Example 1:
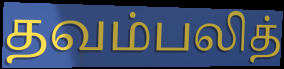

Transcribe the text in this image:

தவம்பலித்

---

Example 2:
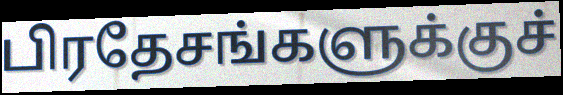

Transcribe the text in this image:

பிரதேசங்களுக்குச்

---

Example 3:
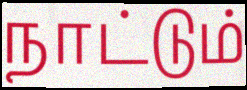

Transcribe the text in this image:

நாட்டும்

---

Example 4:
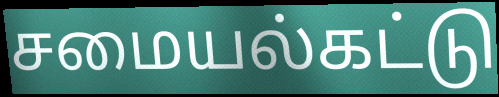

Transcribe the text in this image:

சமையல்கட்டு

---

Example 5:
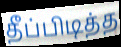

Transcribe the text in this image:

தீப்பிடித்த